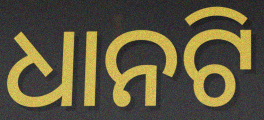
ଧାନଟି